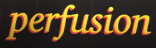
perfusion